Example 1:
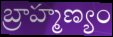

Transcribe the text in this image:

బ్రాహ్మణ్యం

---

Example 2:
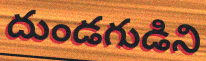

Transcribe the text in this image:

దుండగుడిని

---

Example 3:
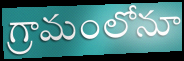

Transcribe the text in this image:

గ్రామంలోనూ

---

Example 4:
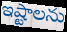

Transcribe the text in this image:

ఇష్టాలను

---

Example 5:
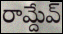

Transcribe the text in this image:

రామ్దేవ్